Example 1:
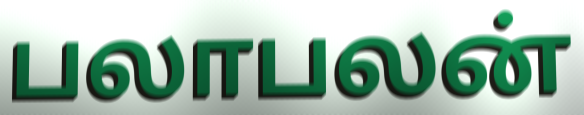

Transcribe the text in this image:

பலாபலன்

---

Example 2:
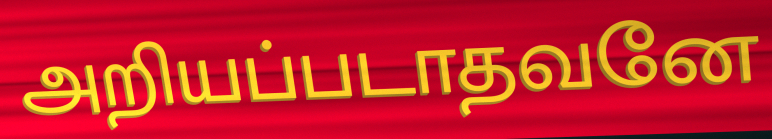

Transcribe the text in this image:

அறியப்படாதவனே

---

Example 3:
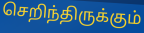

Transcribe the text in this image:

செறிந்திருக்கும்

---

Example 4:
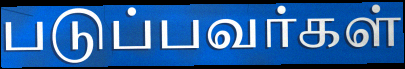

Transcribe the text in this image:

படுப்பவர்கள்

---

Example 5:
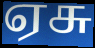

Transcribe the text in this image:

ஏசு